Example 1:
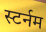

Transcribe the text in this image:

स्टर्नम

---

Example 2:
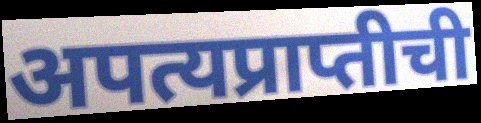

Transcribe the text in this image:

अपत्यप्राप्तीची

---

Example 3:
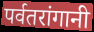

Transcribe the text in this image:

पर्वतरांगानी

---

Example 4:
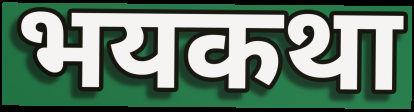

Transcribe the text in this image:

भयकथा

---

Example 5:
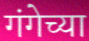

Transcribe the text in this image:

गंगेच्या